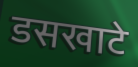
डसखाटे